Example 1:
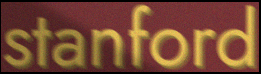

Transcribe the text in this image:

stanford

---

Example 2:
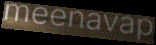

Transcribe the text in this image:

meenavap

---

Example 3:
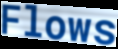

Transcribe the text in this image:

Flows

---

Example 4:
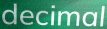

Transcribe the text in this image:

decimal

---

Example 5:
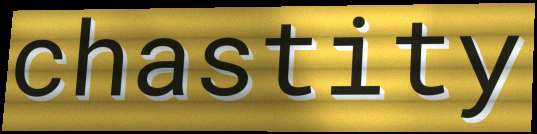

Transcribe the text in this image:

chastity